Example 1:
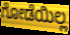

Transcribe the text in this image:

ಗೋಡೆಯಿಲ್ಲ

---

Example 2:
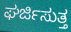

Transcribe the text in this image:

ಘರ್ಜಿಸುತ್ತ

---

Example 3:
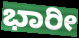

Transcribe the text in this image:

ಭಾರೀ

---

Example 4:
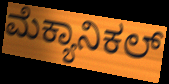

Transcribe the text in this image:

ಮೆಕ್ಯಾನಿಕಲ್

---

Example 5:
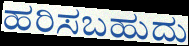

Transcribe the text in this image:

ಹರಿಸಬಹುದು